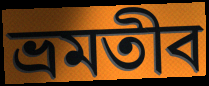
ভ্রমতীব